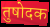
तुषोदक